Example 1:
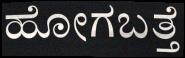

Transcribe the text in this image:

ಹೋಗಬತ್ತೆ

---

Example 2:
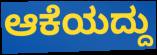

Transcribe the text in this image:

ಆಕೆಯದ್ದು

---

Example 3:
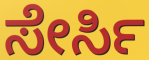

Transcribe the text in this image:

ಸೇರ್ಸಿ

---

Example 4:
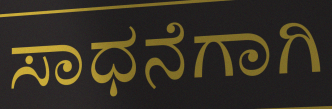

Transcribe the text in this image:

ಸಾಧನೆಗಾಗಿ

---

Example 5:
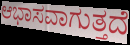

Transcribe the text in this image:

ಆಭಾಸವಾಗುತ್ತದೆ